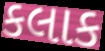
કલાક